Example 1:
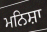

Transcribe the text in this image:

ਮਨਿਸ਼ਾ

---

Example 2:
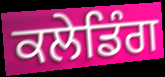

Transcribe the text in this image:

ਕਲੇਡਿੰਗ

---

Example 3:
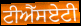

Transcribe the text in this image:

ਟੀਐੱਸਏਟੀ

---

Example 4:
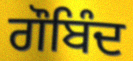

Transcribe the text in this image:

ਗੌਬਿੰਦ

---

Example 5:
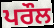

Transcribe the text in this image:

ਪਰੌਲ